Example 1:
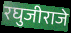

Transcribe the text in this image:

रघुजीराजे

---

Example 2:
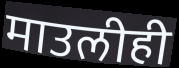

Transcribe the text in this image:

माउलीही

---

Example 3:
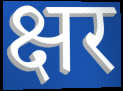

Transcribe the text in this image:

क्षर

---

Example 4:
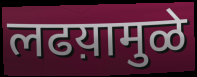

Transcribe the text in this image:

लढय़ामुळे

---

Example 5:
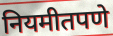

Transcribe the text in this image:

नियमीतपणे